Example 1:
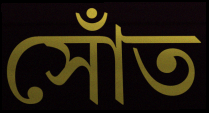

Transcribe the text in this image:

সোঁত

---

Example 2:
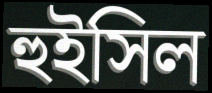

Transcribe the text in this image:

হুইসিল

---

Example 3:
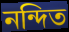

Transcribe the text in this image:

নন্দিত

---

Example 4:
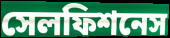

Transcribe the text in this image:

সেলফিশনেস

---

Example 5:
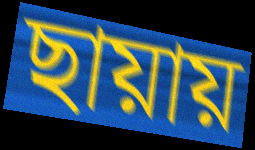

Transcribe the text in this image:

ছায়ায়